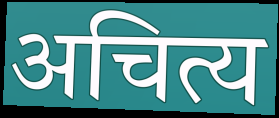
अचित्य